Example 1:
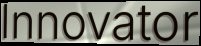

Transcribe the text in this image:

Innovator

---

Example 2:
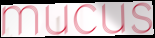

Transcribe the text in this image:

mucus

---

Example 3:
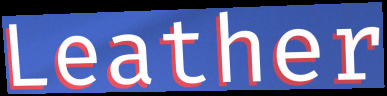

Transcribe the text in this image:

Leather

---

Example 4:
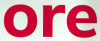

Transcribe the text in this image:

ore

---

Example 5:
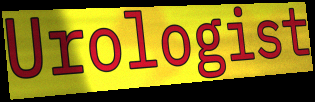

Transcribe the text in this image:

Urologist